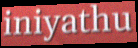
iniyathu